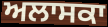
ਅਲਾਸਕਾ